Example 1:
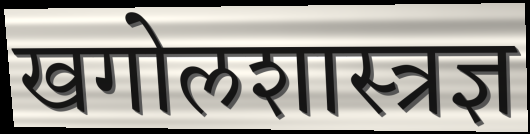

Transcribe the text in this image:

खगोलशास्त्रज्ञ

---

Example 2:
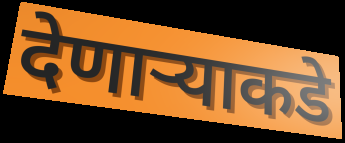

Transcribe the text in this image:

देणाऱ्याकडे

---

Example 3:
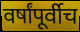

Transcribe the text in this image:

वर्षांपूर्वीच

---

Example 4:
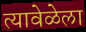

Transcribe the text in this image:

त्यावेळेला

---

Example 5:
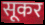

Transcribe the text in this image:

सूकर